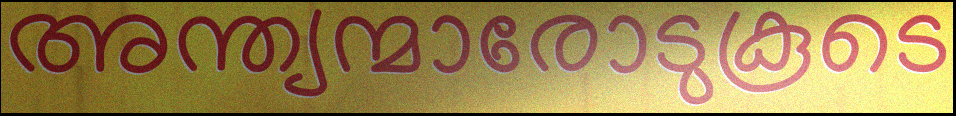
അന്ത്യന്മാരോടുകൂടെ